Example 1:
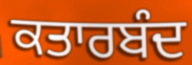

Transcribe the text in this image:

ਕਤਾਰਬੰਦ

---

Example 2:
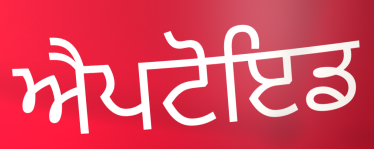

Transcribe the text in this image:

ਐਪਟੋਇਡ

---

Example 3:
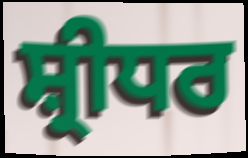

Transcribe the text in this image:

ਸ਼੍ਰੀਧਰ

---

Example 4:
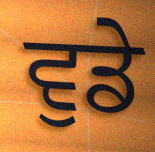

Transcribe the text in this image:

ਵੁਡੇ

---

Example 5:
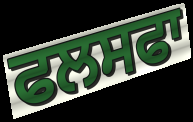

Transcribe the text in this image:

ਫਲਸਫਾ